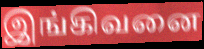
இங்கிவனை